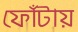
ফোঁটায়